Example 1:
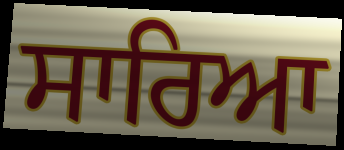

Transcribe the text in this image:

ਸਾਰਿਆ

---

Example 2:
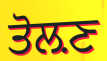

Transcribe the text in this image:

ਤੋਲ਼ਣ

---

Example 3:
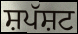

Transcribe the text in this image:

ਸ਼ਪੱਸ਼ਟ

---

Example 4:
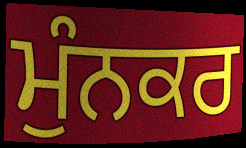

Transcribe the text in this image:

ਮੁੰਨਕਰ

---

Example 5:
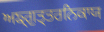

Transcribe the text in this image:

ਅਙ੍ਗੁਤ੍ਤਰਨਿਕਾਯ